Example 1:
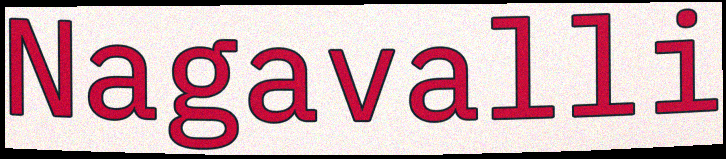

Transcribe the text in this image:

Nagavalli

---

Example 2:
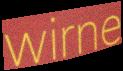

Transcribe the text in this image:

wirne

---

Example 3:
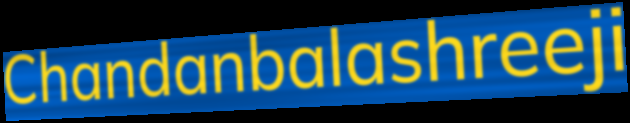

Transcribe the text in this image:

Chandanbalashreeji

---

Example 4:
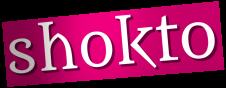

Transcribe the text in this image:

shokto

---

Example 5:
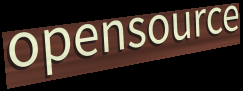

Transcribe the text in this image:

opensource